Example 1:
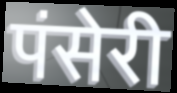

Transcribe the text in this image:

पंसेरी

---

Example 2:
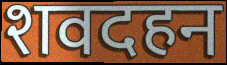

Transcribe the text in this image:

शवदहन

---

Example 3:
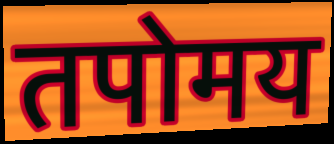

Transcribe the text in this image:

तपोमय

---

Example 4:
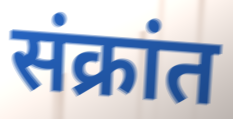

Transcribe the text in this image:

संक्रांत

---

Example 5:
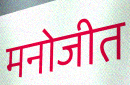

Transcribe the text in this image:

मनोजीत